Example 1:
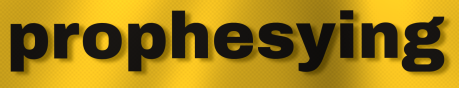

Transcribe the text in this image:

prophesying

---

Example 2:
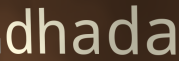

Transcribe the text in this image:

dhada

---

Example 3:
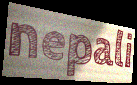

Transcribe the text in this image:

nepali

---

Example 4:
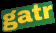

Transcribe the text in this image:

gatr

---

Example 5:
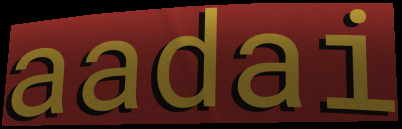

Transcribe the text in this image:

aadai